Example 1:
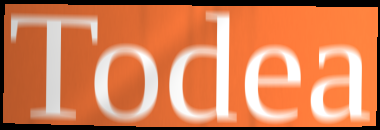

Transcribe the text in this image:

Todea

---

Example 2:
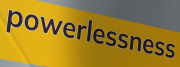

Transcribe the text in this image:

powerlessness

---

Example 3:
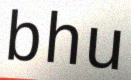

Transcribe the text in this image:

bhu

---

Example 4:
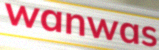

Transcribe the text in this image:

wanwas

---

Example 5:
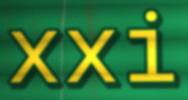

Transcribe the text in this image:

xxi